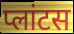
प्लांटस